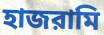
হাজরামি